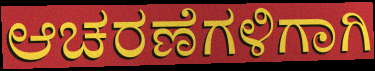
ಆಚರಣೆಗಳಿಗಾಗಿ